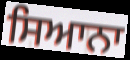
ਸਿਆਨਾ